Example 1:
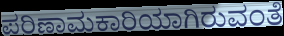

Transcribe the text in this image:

ಪರಿಣಾಮಕಾರಿಯಾಗಿರುವಂತೆ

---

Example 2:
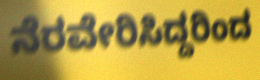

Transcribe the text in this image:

ನೆರವೇರಿಸಿದ್ದರಿಂದ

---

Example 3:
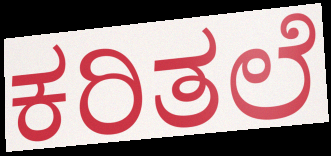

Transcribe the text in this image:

ಕರಿತಲೆ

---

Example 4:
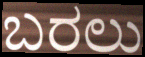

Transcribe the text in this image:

ಬರಲು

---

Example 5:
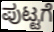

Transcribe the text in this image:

ಪುಟ್ಟಗೆ